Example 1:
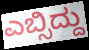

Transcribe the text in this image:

ಎಬ್ಸಿದ್ದು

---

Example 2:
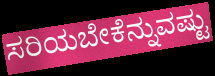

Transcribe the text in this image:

ಸರಿಯಬೇಕೆನ್ನುವಷ್ಟು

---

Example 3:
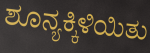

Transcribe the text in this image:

ಶೂನ್ಯಕ್ಕಿಳಿಯಿತು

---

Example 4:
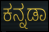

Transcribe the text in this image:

ಕನ್ನಡಾ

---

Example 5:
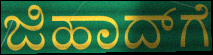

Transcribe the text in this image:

ಜಿಹಾದ್‌ಗೆ